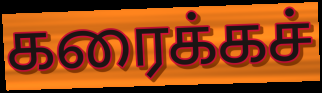
கரைக்கச்